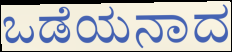
ಒಡೆಯನಾದ